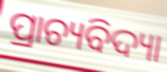
ପ୍ରାଚ୍ୟବିଦ୍ୟା